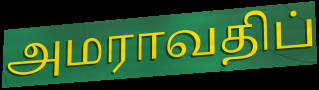
அமராவதிப்